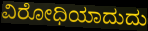
ವಿರೋಧಿಯಾದುದು